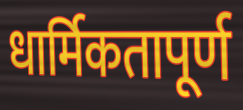
धार्मिकतापूर्ण